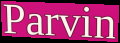
Parvin